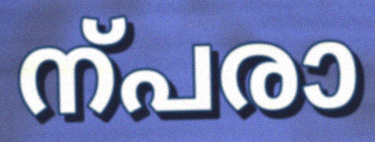
ന്പരാ